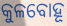
କୁଳବୋହୂ